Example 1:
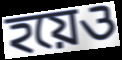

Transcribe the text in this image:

হয়েও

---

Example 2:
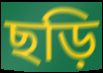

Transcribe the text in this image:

ছড়ি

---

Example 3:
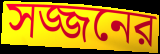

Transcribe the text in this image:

সজ্জনের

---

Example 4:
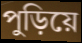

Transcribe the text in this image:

পুড়িয়ে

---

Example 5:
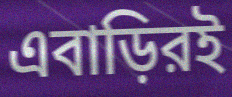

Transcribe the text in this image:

এবাড়িরই